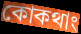
কোকথাং